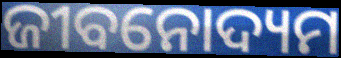
ଜୀବନୋଦ୍ୟମ